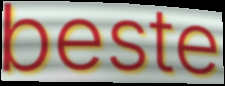
beste